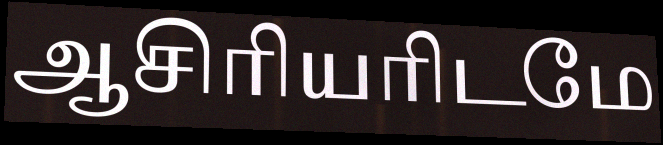
ஆசிரியரிடமே